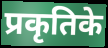
प्रकृतिके